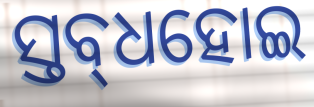
ସ୍ତବ୍‌ଧହୋଇ